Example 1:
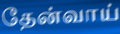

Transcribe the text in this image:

தேன்வாய்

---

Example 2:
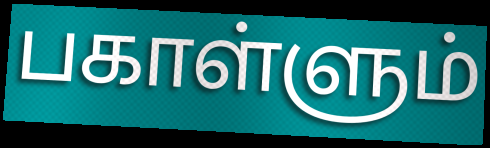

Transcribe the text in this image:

பகாள்ளும்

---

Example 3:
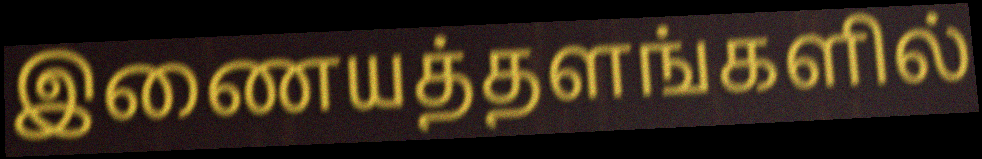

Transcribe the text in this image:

இணையத்தளங்களில்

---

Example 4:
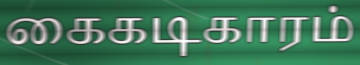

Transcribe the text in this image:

கைகடிகாரம்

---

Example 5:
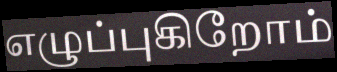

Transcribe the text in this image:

எழுப்புகிறோம்